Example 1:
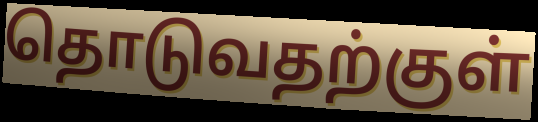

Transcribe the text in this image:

தொடுவதற்குள்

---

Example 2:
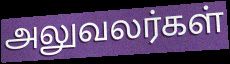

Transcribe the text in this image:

அலுவலர்கள்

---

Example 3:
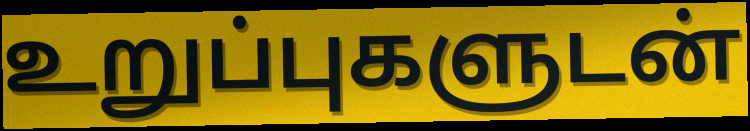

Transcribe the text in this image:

உறுப்புகளுடன்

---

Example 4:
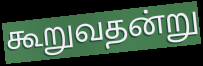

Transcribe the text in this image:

கூறுவதன்று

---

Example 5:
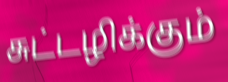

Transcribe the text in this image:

சுட்டழிக்கும்